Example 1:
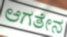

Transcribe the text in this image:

ಆಗತೇನ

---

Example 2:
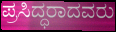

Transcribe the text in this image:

ಪ್ರಸಿದ್ಧರಾದವರು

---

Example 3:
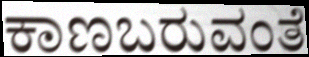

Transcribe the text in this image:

ಕಾಣಬರುವಂತೆ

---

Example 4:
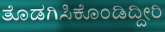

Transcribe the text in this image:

ತೊಡಗಿಸಿಕೊಂಡಿದ್ದೀರಿ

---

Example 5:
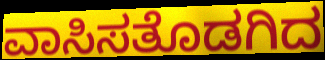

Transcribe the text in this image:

ವಾಸಿಸತೊಡಗಿದ